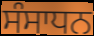
ਸੰਸਾਧਨ